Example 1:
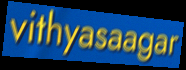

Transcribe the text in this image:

vithyasaagar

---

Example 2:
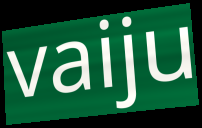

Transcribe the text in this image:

vaiju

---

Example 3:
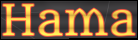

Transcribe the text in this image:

Hama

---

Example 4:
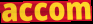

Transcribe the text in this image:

accom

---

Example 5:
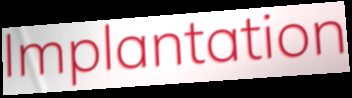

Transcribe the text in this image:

Implantation